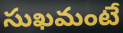
సుఖమంటే